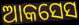
ଆକସେସ